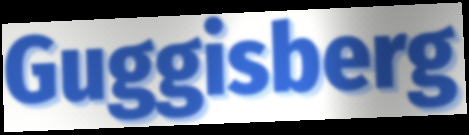
Guggisberg